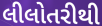
લીલોતરીથી